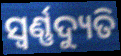
ସ୍ୱର୍ଣ୍ଣଦ୍ୟୁତି